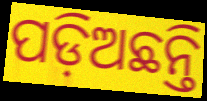
ପଡ଼ିଅଛନ୍ତି